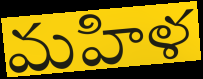
మహిళ